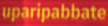
uparipabbate